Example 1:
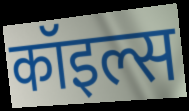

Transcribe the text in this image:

कॉइल्स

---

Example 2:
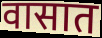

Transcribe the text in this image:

वासात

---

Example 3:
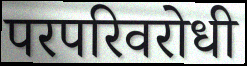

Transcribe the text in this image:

परपरिवरोधी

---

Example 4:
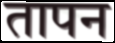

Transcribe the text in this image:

तापन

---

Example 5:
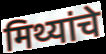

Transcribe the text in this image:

मिथ्यांचे